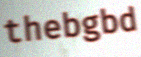
thebgbd